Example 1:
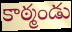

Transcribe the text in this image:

కాఠ్మండు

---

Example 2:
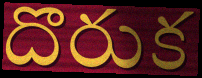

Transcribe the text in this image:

దొరుక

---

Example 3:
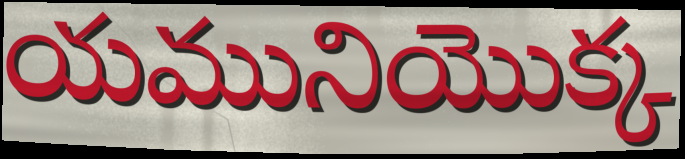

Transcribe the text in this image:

యమునియొక్క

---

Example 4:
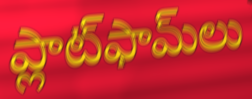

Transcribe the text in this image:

ప్లాట్‌ఫామ్‌లు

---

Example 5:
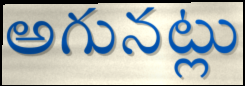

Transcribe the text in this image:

అగునట్లు